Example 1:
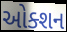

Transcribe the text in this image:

ઓક્શન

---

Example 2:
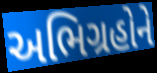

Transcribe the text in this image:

અભિગ્રહોને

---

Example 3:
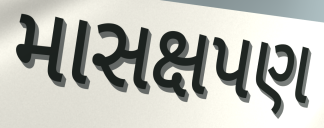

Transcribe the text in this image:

માસક્ષપણ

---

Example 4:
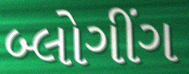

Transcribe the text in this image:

બ્લોગીંગ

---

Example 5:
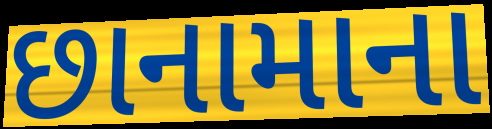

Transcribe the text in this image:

છાનામાના